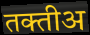
तक्तीअ